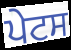
ਪੇਟਸ